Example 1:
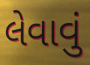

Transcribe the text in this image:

લેવાવું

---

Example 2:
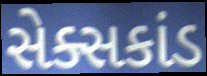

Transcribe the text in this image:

સેક્સકાંડ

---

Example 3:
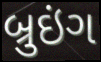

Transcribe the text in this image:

બ્રુઇંગ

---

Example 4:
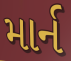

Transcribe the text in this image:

માર્ન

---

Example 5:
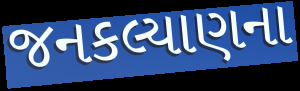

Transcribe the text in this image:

જનકલ્યાણના